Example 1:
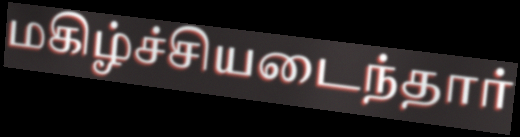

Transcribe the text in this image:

மகிழ்ச்சியடைந்தார்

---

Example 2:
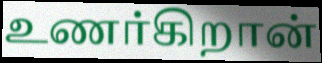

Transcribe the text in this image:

உணர்கிறான்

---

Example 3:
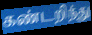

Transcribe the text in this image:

கண்டறிந்து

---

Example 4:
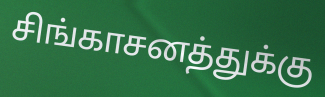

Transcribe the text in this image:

சிங்காசனத்துக்கு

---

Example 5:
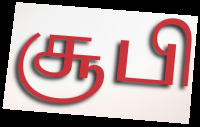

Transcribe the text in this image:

சூபி